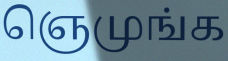
ஞெமுங்க